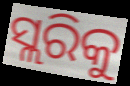
ସ୍ଲରିକୁ